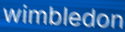
wimbledon